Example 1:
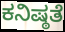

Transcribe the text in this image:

ಕನಿಷ್ಠತೆ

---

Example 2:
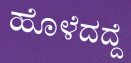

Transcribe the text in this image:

ಹೊಳೆದದ್ದೆ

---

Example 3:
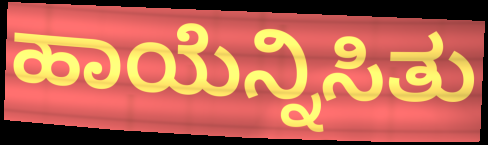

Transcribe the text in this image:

ಹಾಯೆನ್ನಿಸಿತು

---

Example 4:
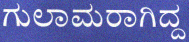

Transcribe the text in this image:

ಗುಲಾಮರಾಗಿದ್ದ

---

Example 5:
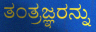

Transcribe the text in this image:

ತಂತ್ರಜ್ಞರನ್ನು